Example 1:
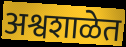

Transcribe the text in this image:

अश्वशाळेत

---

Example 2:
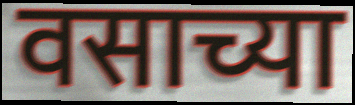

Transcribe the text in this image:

वसाच्या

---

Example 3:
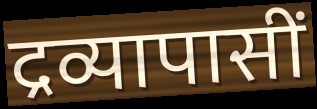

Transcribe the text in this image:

द्रव्यापासीं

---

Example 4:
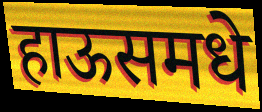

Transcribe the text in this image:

हाऊसमधे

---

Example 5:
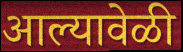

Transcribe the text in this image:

आल्यावेळी